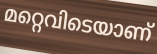
മറ്റെവിടെയാണ്